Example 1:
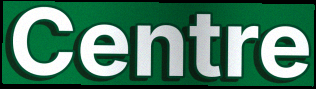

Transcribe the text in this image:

Centre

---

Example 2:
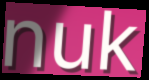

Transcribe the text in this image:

nuk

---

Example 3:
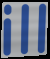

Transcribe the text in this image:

ill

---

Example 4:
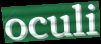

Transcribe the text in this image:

oculi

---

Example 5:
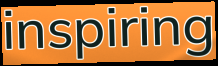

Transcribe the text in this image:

inspiring